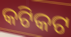
କଟିକଟ